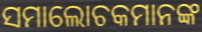
ସମାଲୋଚକମାନଙ୍କ